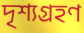
দৃশ্যগ্ৰহণ